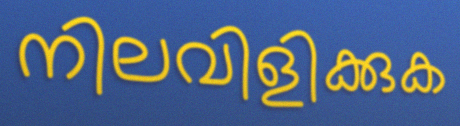
നിലവിളിക്കുക